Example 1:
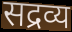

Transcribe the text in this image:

सद्रव्य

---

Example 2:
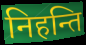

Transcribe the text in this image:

निहन्ति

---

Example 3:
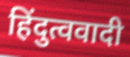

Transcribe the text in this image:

हिंदुत्ववादी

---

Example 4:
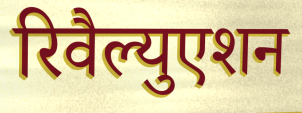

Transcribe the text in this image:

रिवैल्युएशन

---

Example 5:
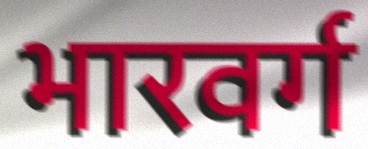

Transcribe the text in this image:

भारवर्ग